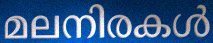
മലനിരകൾ